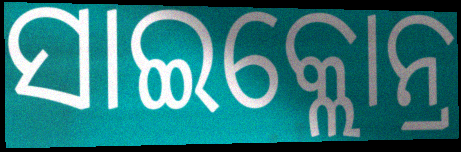
ସାଇକ୍ଲୋନ୍ର